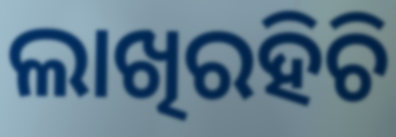
ଲାଖିରହିଚି